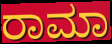
ರಾಮಾ